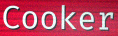
Cooker